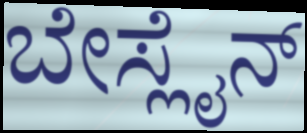
ಬೇಸ್ಲೈನ್